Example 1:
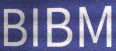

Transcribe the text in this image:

BIBM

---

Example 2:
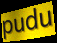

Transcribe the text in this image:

pudu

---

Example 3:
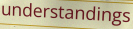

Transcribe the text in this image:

understandings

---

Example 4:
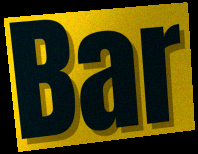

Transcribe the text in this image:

Bar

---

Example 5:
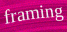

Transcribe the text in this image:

framing